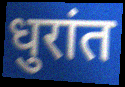
धुरांत